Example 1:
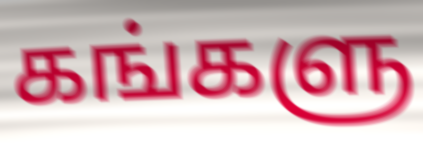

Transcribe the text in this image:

கங்களு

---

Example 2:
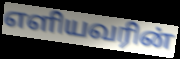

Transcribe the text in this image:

எளியவரின்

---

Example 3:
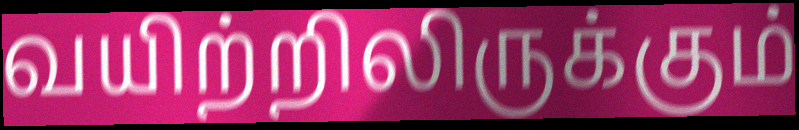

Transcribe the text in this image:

வயிற்றிலிருக்கும்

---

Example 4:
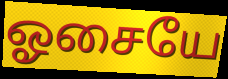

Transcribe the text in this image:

ஓசையே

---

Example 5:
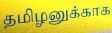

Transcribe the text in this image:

தமிழனுக்காக